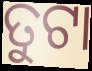
ତୁଟା